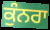
ਕੁੰਨਰਾ